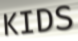
KIDS